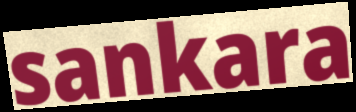
sankara